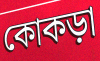
কোকড়া